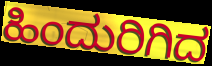
ಹಿಂದುರಿಗಿದ